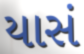
યાસં